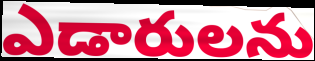
ఎడారులను